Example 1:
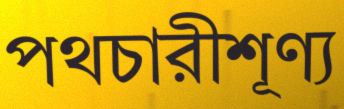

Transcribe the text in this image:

পথচারীশূণ্য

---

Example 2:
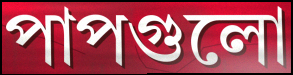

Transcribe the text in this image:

পাপগুলো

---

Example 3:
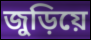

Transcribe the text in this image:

জুড়িয়ে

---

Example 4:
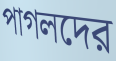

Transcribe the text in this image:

পাগলদের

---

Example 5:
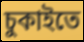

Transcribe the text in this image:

চুকাইতে